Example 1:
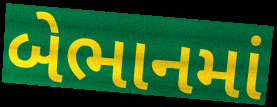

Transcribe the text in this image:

બેભાનમાં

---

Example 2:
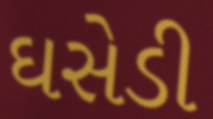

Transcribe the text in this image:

ઘસેડી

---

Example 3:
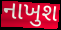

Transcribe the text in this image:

નાખુશ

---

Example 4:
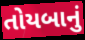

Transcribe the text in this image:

તોયબાનું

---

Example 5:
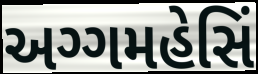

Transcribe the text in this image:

અગ્ગમહેસિં